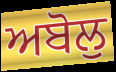
ਅਬੋਲੁ